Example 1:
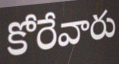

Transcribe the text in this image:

కోరేవారు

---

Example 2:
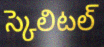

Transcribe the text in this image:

స్కెలిటల్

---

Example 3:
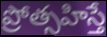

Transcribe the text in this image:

ప్రోత్సహిస్తే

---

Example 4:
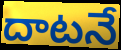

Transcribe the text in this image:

దాటనే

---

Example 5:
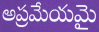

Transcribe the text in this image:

అప్రమేయమై